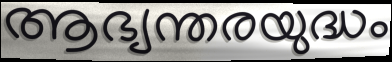
ആഭ്യന്തരയുദ്ധം